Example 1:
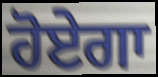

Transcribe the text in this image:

ਹੋਏਗਾ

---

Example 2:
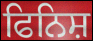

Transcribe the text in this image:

ਫਿਨਿਸ਼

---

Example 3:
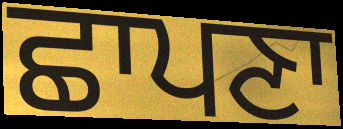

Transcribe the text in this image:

ਛਾਪਣਾ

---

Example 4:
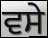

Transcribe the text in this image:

ਵਸੇ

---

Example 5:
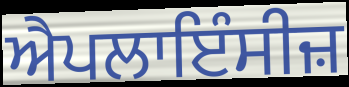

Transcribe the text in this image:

ਐਪਲਾਇੰਸੀਜ਼